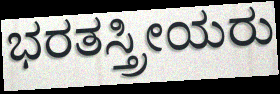
ಭರತಸ್ತ್ರೀಯರು